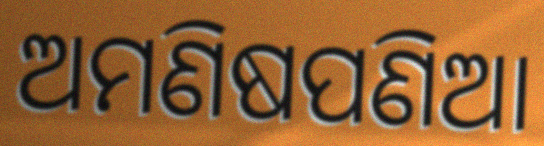
ଅମଣିଷପଣିଆ